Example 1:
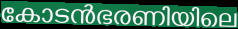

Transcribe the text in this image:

കോടൻഭരണിയിലെ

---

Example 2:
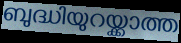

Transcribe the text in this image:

ബുദ്ധിയുറയ്ക്കാത്ത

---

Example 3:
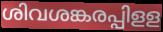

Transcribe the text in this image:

ശിവശങ്കരപ്പിളള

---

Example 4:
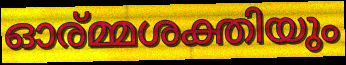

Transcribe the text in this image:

ഓര്മ്മശക്തിയും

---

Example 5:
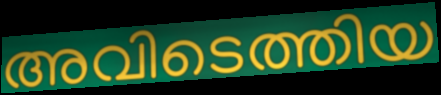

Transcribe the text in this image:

അവിടെത്തിയ